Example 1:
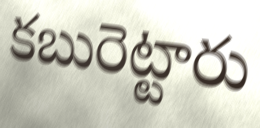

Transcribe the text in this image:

కబురెట్టారు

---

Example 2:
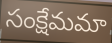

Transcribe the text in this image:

సంక్షేమమా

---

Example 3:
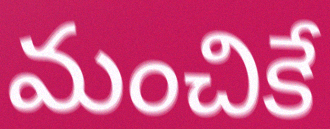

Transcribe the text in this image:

మంచికే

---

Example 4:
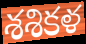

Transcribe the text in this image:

శశికళ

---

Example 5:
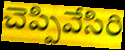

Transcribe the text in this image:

చెప్పివేసిరి